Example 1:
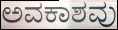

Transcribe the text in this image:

ಅವಕಾಶವು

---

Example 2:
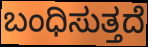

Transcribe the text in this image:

ಬಂಧಿಸುತ್ತದೆ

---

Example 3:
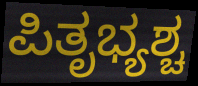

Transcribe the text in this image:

ಪಿತೃಭ್ಯಶ್ಚ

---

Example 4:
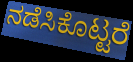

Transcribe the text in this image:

ನಡೆಸಿಕೊಟ್ಟರೆ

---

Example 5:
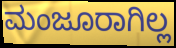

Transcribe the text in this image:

ಮಂಜೂರಾಗಿಲ್ಲ